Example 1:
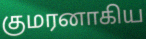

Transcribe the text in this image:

குமரனாகிய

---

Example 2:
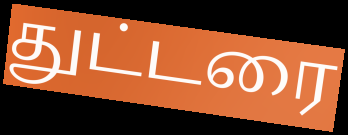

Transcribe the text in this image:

துட்டரை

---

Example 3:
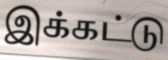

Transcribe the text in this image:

இக்கட்டு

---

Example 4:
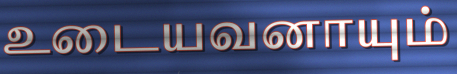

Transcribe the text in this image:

உடையவனாயும்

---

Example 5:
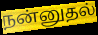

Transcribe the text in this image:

நன்னுதல்